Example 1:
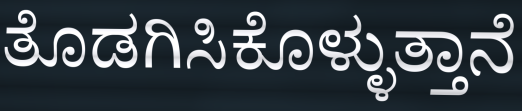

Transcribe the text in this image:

ತೊಡಗಿಸಿಕೊಳ್ಳುತ್ತಾನೆ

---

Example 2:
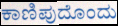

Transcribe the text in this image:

ಕಾಣಿಪುದೊಂದು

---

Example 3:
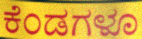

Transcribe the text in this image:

ಕೆಂಡಗಳೂ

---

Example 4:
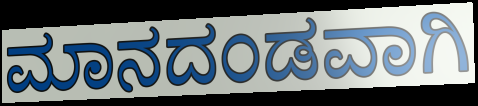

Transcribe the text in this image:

ಮಾನದಂಡವಾಗಿ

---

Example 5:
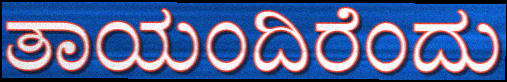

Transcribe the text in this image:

ತಾಯಂದಿರೆಂದು